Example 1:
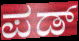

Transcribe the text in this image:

ಪಡ್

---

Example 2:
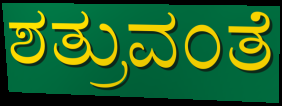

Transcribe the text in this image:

ಶತ್ರುವಂತೆ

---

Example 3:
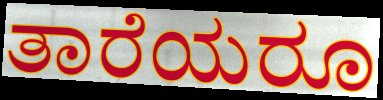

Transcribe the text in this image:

ತಾರೆಯರೂ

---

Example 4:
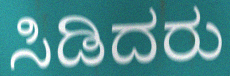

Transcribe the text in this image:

ಸಿಡಿದರು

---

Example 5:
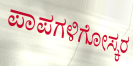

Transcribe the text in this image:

ಪಾಪಗಳಿಗೋಸ್ಕರ